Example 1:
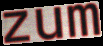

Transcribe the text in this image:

zum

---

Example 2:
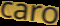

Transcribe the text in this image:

caro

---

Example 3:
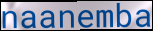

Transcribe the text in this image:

naanemba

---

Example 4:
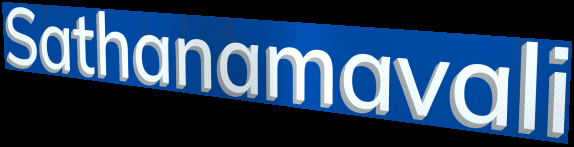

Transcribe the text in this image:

Sathanamavali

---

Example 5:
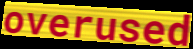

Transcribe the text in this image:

overused